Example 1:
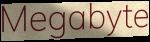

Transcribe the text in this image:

Megabyte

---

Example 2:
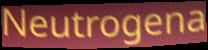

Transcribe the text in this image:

Neutrogena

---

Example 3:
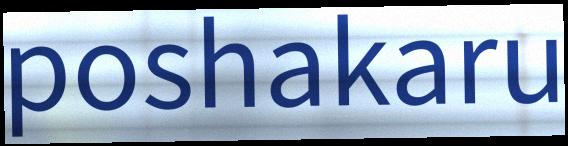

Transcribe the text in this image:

poshakaru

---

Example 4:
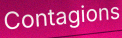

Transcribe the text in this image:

Contagions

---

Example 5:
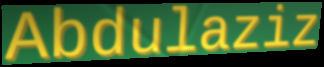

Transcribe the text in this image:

Abdulaziz